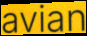
avian